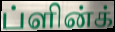
ப்ளின்க்